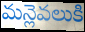
మన్లెవలుకి